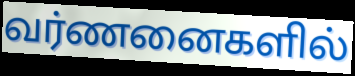
வர்ணனைகளில்